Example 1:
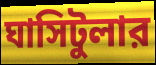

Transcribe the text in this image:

ঘাসিটুলার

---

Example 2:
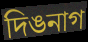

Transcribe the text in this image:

দিঙনাগ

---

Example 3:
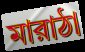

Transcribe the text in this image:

মারাঠা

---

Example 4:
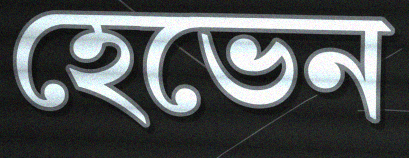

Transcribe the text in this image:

হেভেন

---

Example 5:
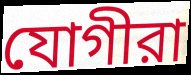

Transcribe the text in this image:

যোগীরা